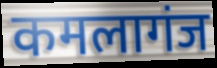
कमलागंज